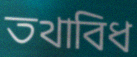
তথাবিধ